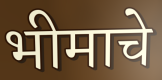
भीमाचे